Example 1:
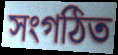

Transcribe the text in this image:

সংগঠিত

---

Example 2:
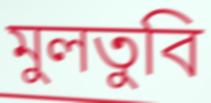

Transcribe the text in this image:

মুলতুবি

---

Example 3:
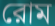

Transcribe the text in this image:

রোম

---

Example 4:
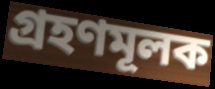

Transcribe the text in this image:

গ্রহণমূলক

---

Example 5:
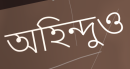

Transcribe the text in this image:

অহিন্দুও